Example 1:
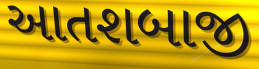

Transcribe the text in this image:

આતશબાજી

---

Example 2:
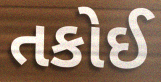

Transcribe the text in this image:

તકોઈ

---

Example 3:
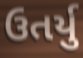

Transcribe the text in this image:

ઉતર્યુ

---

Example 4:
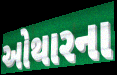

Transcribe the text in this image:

ઓથારના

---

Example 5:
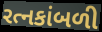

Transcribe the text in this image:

રત્નકાંબળી